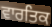
ਵਾਰਤਿਕ